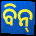
ବିନ୍